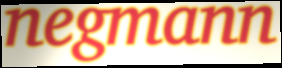
negmann